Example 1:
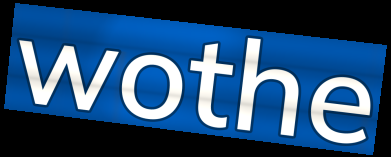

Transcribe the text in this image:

wothe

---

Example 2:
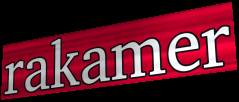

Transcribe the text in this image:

rakamer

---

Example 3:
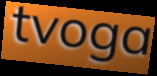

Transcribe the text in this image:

tvoga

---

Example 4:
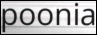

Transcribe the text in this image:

poonia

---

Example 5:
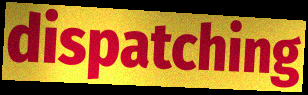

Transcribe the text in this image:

dispatching